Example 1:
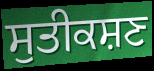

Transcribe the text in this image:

ਸੁਤੀਕਸ਼ਣ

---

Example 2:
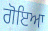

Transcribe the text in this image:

ਗੋਇਆ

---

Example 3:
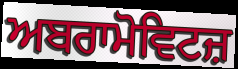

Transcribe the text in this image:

ਅਬਰਾਮੋਵਿਟਜ਼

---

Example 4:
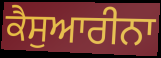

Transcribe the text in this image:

ਕੈਸੁਆਰੀਨਾ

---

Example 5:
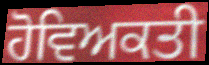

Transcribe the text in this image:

ਹੋਵਿਅਕਤੀ